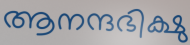
ആനന്ദഭിക്ഷു